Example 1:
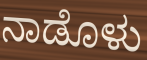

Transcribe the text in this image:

ನಾಡೊಳು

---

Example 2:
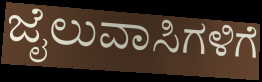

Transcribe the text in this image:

ಜೈಲುವಾಸಿಗಳಿಗೆ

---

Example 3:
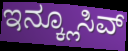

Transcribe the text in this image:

ಇನ್ಕ್ಲೂಸಿವ್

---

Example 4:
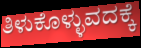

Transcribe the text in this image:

ತಿಳುಕೊಳ್ಳುವದಕ್ಕೆ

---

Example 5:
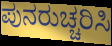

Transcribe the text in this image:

ಪುನರುಚ್ಚರಿಸಿ